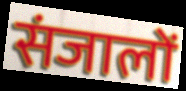
संजालों